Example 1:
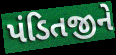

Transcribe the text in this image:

પંડિતજીને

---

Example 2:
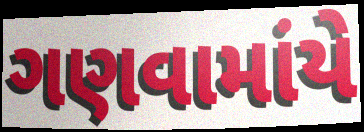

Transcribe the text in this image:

ગણવામાંયે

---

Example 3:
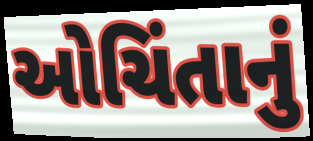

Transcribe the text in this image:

ઓચિંતાનું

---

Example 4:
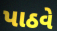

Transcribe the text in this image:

પાઠવે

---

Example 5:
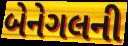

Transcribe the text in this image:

બેનેગલની